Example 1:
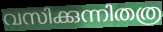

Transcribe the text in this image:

വസിക്കുന്നിതത്ര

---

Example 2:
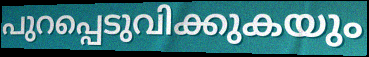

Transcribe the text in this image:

പുറപ്പെടുവിക്കുകയും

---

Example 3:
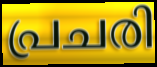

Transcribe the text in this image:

പ്രചരി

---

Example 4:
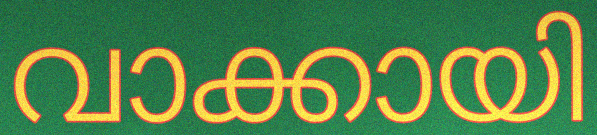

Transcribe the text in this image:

വാക്കായി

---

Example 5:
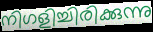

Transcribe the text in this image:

നിഗളിച്ചിരിക്കുന്നു